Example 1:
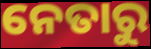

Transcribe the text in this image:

ନେତାରୁ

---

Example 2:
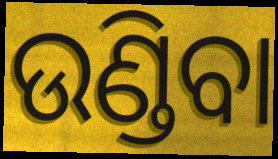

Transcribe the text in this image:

ଉଣ୍ଡିବା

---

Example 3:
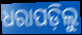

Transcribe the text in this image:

ଧରାପଡ଼ିଲୁ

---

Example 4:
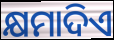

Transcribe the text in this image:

କ୍ଷମାଦିଏ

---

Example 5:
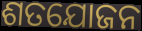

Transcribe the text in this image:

ଶତଯୋଜନ